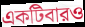
একটিবারও